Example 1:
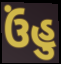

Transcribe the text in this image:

ઉંહુ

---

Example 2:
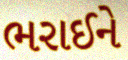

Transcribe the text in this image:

ભરાઈને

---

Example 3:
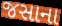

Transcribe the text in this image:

જસાના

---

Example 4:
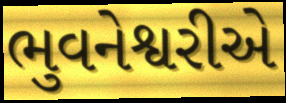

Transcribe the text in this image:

ભુવનેશ્વરીએ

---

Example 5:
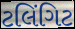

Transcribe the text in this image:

ટલિંગિટ